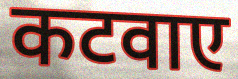
कटवाए